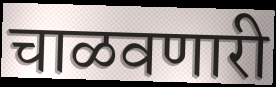
चाळवणारी